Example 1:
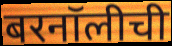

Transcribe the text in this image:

बरनॉलीची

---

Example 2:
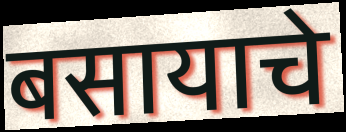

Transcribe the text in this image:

बसायाचे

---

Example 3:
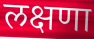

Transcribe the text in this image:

लक्षणा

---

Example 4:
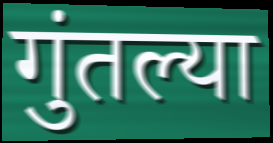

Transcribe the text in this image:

गुंतल्या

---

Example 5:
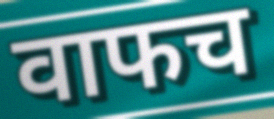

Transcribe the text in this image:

वाफच